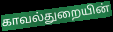
காவல்துறையின்